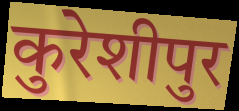
कुरेशीपुर